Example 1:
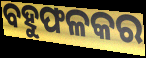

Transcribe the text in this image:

ବହୁଫଳକର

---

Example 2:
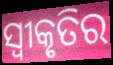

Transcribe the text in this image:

ସ୍ୱୀକୃତିର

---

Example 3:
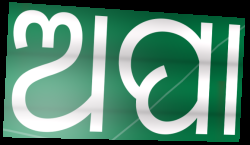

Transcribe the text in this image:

ଅପା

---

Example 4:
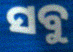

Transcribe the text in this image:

ସବୁ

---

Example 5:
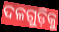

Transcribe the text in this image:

ଦଳଗୁଡ଼ିକୁ